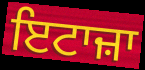
ਇਟਾਜ਼ਾ